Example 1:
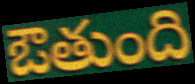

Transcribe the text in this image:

ఔతుంది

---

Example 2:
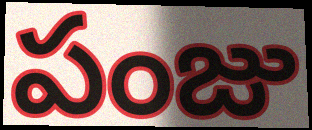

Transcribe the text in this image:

పంజు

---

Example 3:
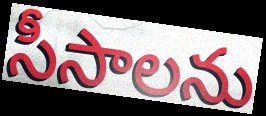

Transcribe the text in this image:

సీసాలను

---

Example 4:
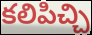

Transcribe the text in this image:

కలిపిచ్చి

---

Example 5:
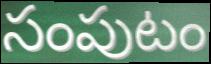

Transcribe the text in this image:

సంపుటం